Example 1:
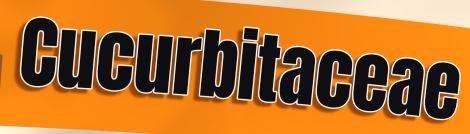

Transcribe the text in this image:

Cucurbitaceae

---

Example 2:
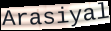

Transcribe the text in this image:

Arasiyal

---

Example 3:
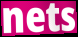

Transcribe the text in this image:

nets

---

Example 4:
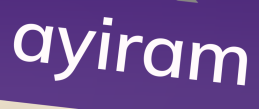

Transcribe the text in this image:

ayiram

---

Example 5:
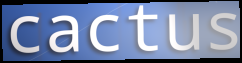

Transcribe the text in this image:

cactus